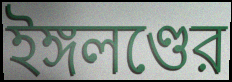
ইঙ্গলণ্ডের